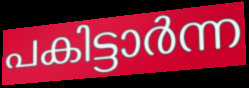
പകിട്ടാർന്ന